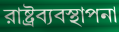
রাষ্ট্রব্যবস্থাপনা